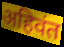
अहिवंत